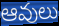
ఆవులు